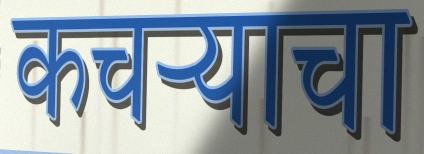
कचऱ्याचा